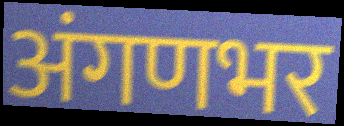
अंगणभर